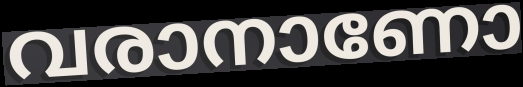
വരാനാണോ